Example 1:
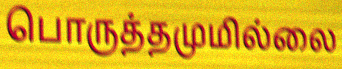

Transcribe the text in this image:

பொருத்தமுமில்லை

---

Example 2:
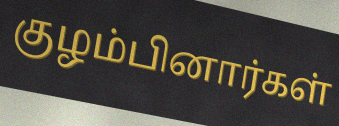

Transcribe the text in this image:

குழம்பினார்கள்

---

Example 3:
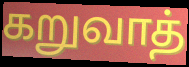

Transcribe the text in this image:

கறுவாத்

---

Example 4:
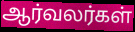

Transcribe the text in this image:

ஆர்வலர்கள்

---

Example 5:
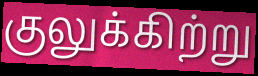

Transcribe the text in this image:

குலுக்கிற்று